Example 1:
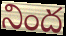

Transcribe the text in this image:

నింద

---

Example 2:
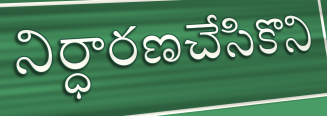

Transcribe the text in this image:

నిర్ధారణచేసికొని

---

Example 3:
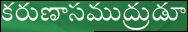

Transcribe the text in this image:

కరుణాసముద్రుడూ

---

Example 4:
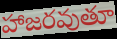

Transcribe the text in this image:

హాజరవుతూ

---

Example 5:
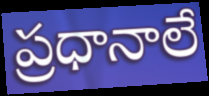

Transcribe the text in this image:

ప్రధానాలే